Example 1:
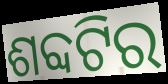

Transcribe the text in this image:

ଶବ୍ଦଟିର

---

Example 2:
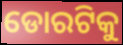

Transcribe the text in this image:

ଡୋରଟିକୁ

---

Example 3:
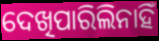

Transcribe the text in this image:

ଦେଖିପାରିଲିନାହିଁ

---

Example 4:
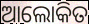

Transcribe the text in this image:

ଆଲୋକିତ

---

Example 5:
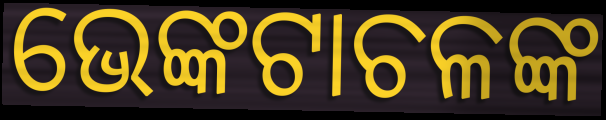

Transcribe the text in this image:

ଭେଙ୍କଟାଚଳଙ୍କ